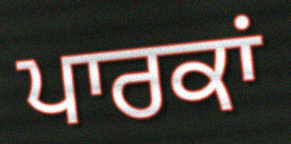
ਪਾਰਕਾਂ